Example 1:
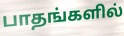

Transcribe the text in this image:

பாதங்களில்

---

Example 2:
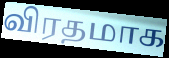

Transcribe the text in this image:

விரதமாக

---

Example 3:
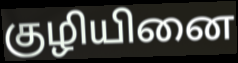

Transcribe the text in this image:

குழியினை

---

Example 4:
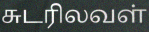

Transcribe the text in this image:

சுடரிலவள்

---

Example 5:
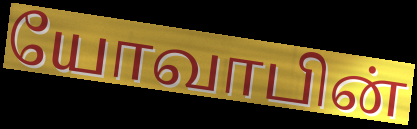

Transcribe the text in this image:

யோவாபின்